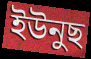
ইউনুছ